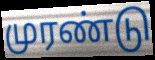
முரண்டு